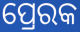
ପ୍ରେରକ